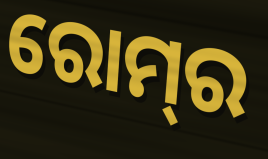
ରୋମ୍‍ର